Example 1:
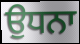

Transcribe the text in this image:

ਉਧਨਾ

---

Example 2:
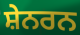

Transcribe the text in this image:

ਸ਼ੇਨਰਨ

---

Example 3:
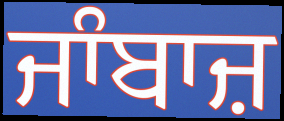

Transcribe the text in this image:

ਜਾੰਬਾਜ਼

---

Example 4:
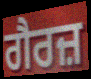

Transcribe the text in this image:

ਗੈਰਜ਼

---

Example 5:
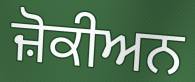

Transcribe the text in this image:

ਜ਼ੋਕੀਅਨ